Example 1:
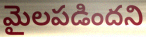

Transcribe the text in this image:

మైలపడిందని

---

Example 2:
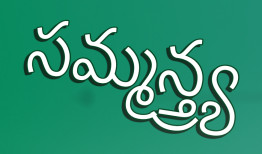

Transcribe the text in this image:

సమ్మన్త్ర్య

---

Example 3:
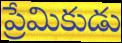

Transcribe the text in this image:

ప్రేమికుడు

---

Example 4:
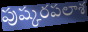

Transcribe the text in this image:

పుష్కరపలాశ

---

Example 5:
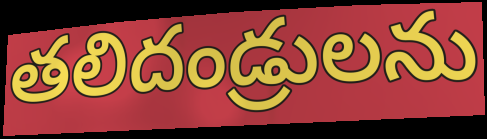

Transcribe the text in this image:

తలిదండ్రులను